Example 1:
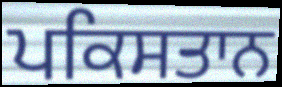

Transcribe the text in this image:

ਪਕਿਸਤਾਨ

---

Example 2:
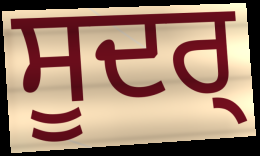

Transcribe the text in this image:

ਸੂਦਰ੍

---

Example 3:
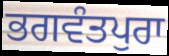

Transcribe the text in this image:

ਭਗਵੰਤਪੁਰਾ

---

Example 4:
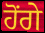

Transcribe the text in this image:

ਹੋਂਗੇ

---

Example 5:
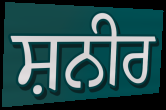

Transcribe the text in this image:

ਸ਼ਨੀਰ